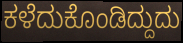
ಕಳೆದುಕೊಂಡಿದ್ದುದು